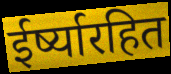
ईर्ष्यारहित